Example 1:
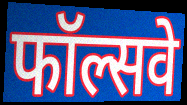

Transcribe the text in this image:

फॉल्सवे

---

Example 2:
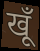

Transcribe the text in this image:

खूँ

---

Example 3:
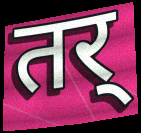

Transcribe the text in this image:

तर्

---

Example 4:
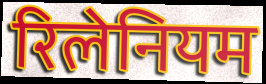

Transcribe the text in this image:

रिलेनियम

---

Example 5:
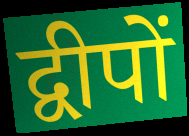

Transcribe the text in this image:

द्वीपों